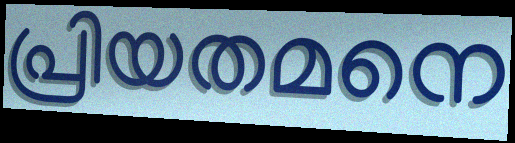
പ്രിയതമനെ